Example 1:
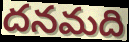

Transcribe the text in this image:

దనమది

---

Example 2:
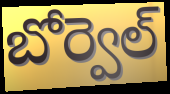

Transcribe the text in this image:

బోర్వెల్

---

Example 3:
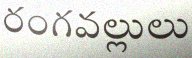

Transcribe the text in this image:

రంగవల్లులు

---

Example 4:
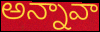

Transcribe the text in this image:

అన్నావా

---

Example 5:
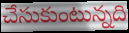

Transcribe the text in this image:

చేసుకుంటున్నది